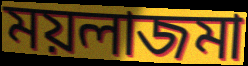
ময়লাজমা